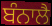
ਬੰਨਾਲੈ